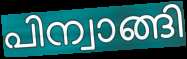
പിന്വാങ്ങി